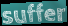
suffer